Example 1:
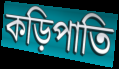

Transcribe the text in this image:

কড়িপাতি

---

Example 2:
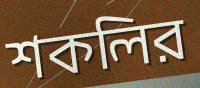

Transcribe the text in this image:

শকলির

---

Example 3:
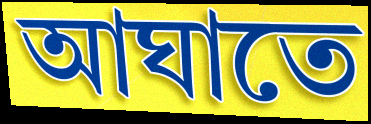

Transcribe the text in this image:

আঘাতে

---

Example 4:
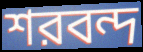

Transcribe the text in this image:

শরবন্দ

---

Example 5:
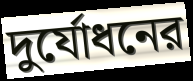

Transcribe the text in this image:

দুর্যোধনের